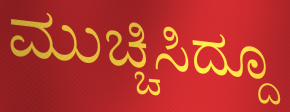
ಮುಚ್ಚಿಸಿದ್ದೂ